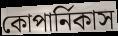
কোপার্নিকাস